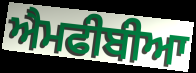
ਐਮਫੀਬੀਆ